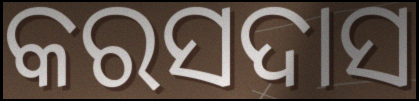
କରସଦାସ